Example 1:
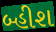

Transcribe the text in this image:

બ્હીશ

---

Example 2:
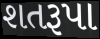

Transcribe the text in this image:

શતરૂપા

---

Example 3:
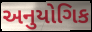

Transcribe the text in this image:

અનુયોગિક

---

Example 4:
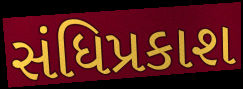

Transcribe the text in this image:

સંધિપ્રકાશ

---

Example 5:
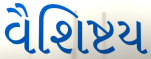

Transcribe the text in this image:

વૈશિષ્ટય